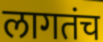
लागतंच